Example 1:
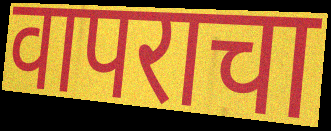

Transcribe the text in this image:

वापराचा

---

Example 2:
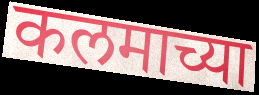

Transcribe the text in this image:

कलमाच्या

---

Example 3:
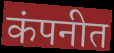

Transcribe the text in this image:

कंपनीत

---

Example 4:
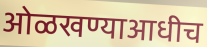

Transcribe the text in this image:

ओळखण्याआधीच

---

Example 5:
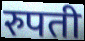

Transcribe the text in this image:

रुपती